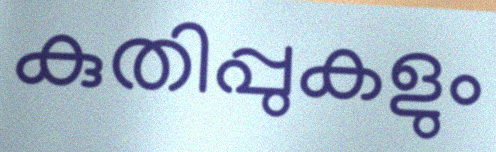
കുതിപ്പുകളും